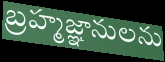
బ్రహ్మజ్ఞానులను